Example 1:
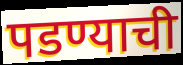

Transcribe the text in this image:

पडण्याची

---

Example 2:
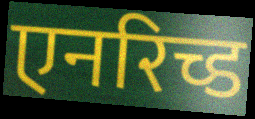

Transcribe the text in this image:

एनरिच्ड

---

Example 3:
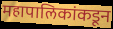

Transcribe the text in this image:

महापालिकांकडून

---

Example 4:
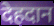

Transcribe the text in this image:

देहदान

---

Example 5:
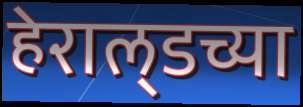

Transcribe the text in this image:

हेराल्डच्या